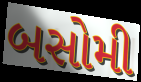
બસોમી